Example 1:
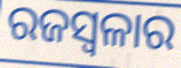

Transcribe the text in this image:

ରଜସ୍ୱଳାର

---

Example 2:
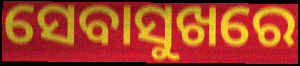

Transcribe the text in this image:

ସେବାସୁଖରେ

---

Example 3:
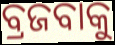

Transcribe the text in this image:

ବ୍ରଜବାକୁ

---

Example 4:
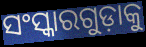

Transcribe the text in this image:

ସଂସ୍କାରଗୁଡ଼ାକୁ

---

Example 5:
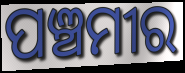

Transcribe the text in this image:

ପଞ୍ଚମୀର